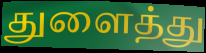
துளைத்து